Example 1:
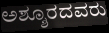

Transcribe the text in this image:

ಅಶ್ಶೂರದವರು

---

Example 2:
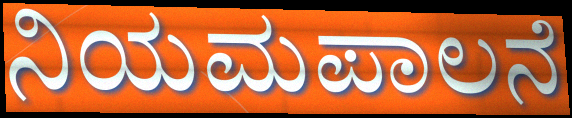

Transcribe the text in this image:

ನಿಯಮಪಾಲನೆ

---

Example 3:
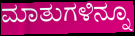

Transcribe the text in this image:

ಮಾತುಗಳಿನ್ನೂ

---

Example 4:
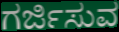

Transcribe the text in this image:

ಗರ್ಜಿಸುವ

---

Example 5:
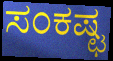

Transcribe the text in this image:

ಸಂಕಷ್ಟ